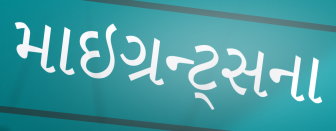
માઇગ્રન્ટ્સના